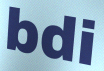
bdi